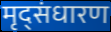
मृद्संधारण